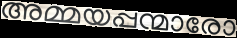
അമ്മയപ്പന്മാരോ